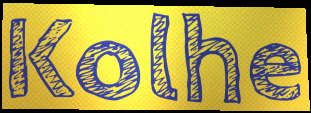
Kolhe